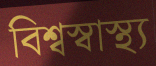
বিশ্বস্বাস্থ্য